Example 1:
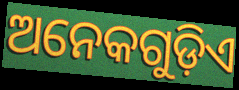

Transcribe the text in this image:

ଅନେକଗୁଡ଼ିଏ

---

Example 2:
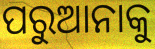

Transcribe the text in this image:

ପରୁଆନାକୁ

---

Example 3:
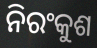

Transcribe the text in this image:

ନିରଂକୁଶ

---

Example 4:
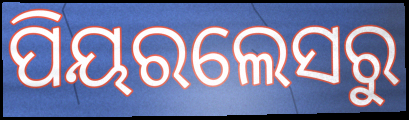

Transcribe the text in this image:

ପିୟରଲେସରୁ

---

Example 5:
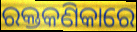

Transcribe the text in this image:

ରକ୍ତକଣିକାରେ